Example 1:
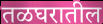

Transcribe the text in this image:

तळघरातील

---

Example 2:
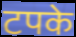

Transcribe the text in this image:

टपके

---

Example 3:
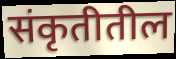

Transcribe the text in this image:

संकृतीतील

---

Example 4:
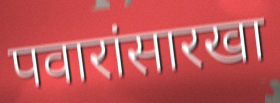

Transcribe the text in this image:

पवारांसारखा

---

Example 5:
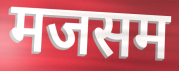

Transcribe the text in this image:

मजसम